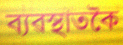
ব্যৱস্থাতকৈ